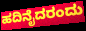
ಹದಿನೈದರಂದು